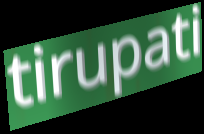
tirupati